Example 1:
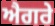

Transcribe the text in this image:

ਐਗਰੇ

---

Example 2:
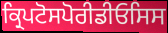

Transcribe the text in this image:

ਕ੍ਰਿਪਟੋਸਪੋਰੀਡੀਓਸਿਸ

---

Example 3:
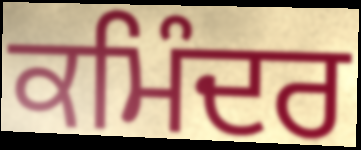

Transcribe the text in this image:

ਕਮਿੰਦਰ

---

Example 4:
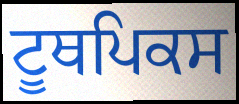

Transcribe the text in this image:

ਟੂਥਪਿਕਸ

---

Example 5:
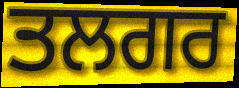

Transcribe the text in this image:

ਤਲਗਰ